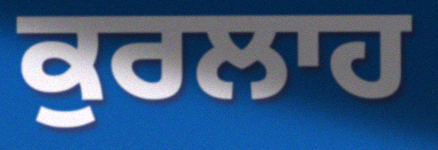
ਕੁਰਲਾਹ